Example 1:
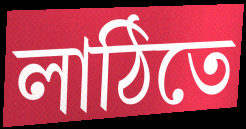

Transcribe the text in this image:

লাঠিতে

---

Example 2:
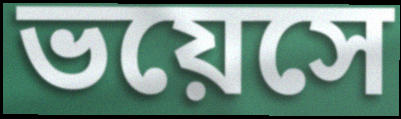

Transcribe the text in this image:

ভয়েসে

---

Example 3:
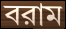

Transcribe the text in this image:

বরাম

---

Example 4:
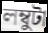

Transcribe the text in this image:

লম্বুটা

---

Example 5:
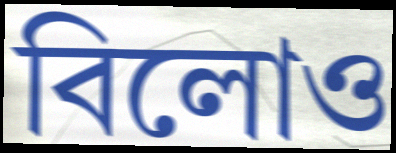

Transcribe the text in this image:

বিলোও